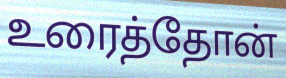
உரைத்தோன்